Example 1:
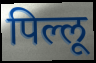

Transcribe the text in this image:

पिल्लू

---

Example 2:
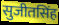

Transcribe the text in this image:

सुजीतसिंह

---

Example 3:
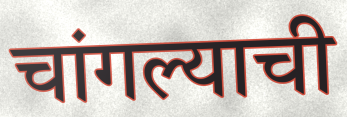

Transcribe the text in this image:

चांगल्याची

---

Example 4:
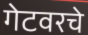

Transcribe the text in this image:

गेटवरचे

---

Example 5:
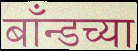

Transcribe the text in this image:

बाँन्डच्या